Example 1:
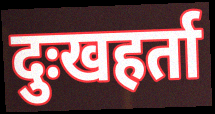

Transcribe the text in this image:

दुःखहर्ता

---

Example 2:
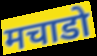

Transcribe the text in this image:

मचाडो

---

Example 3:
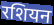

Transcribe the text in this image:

रशियन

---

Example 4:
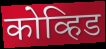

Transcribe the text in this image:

कोव्हिड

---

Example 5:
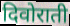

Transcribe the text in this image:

दिवोराती